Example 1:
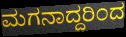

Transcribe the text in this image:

ಮಗನಾದ್ದರಿಂದ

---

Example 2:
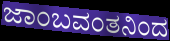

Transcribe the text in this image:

ಜಾಂಬವಂತನಿಂದ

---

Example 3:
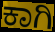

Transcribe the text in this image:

ಕಾಗಿ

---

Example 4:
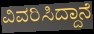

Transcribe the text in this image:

ವಿವರಿಸಿದ್ದಾನೆ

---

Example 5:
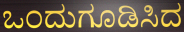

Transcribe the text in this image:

ಒಂದುಗೂಡಿಸಿದ